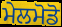
ਮੇਲਮੋਡੋ